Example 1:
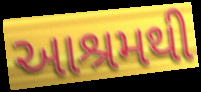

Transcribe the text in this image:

આશ્રમથી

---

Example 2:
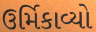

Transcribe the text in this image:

ઉર્મિકાવ્યો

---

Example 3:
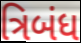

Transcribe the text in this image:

ત્રિબંધ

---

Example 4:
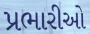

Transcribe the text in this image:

પ્રભારીઓ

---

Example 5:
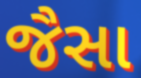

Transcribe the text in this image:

જૈસા